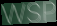
WSP